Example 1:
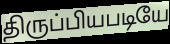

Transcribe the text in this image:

திருப்பியபடியே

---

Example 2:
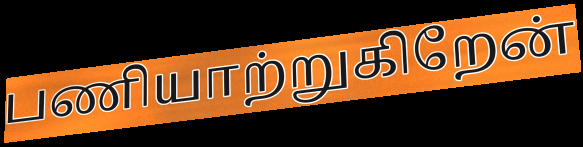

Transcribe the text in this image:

பணியாற்றுகிறேன்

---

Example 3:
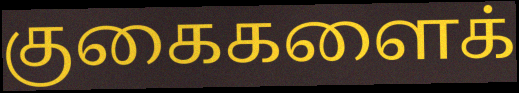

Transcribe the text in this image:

குகைகளைக்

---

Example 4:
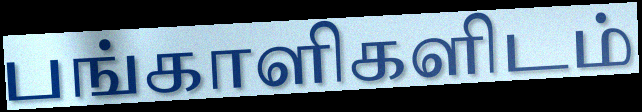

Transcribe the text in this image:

பங்காளிகளிடம்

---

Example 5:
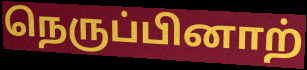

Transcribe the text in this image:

நெருப்பினாற்